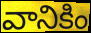
వానికిం